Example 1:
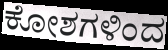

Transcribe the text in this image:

ಕೋಶಗಳಿಂದ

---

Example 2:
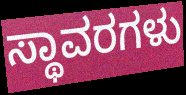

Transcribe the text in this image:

ಸ್ಥಾವರಗಳು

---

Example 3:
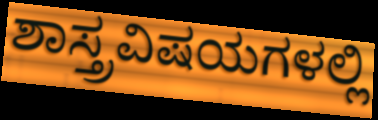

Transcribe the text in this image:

ಶಾಸ್ತ್ರವಿಷಯಗಳಲ್ಲಿ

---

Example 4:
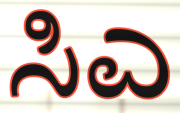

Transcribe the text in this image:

ಸಿಎ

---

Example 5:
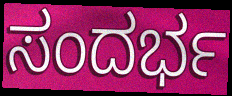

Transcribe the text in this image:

ಸಂದರ್ಭ